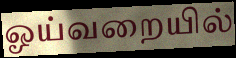
ஓய்வறையில்